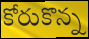
కోరుకొన్న